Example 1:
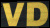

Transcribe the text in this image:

VD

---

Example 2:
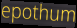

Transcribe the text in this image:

epothum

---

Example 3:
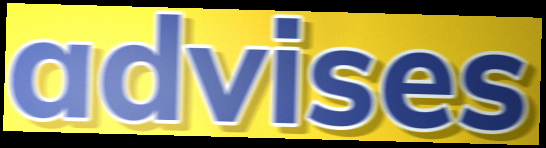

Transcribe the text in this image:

advises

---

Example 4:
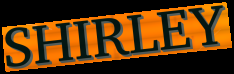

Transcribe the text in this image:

SHIRLEY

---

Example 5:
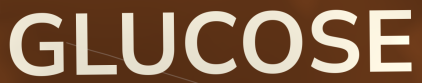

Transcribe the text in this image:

GLUCOSE